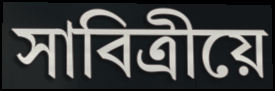
সাবিত্ৰীয়ে